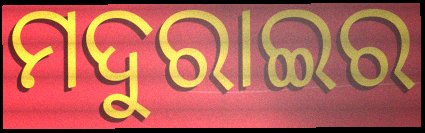
ମଦୁରାଇର